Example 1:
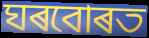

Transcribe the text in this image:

ঘৰবোৰত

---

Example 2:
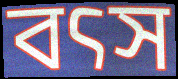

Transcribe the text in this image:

বৎস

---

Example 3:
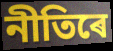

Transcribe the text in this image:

নীতিৰে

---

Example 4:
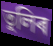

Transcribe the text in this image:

তুলিৰ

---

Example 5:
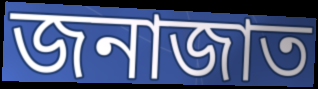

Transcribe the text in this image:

জনাজাত